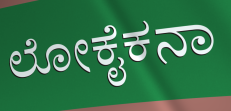
ಲೋಕೈಕನಾ